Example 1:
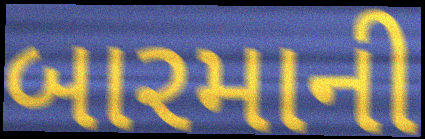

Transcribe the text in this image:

બારમાની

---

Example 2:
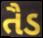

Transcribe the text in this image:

તૈડ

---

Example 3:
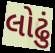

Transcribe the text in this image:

લોઢું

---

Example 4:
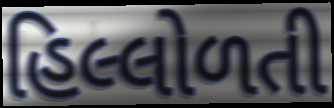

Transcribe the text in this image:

હિલ્લોળતી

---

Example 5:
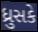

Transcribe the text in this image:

ધ્રુસકે